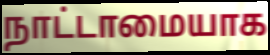
நாட்டாமையாக